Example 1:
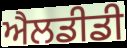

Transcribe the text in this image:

ਐਲਡੀਡੀ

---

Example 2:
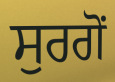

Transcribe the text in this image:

ਸੁਰਗੋਂ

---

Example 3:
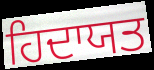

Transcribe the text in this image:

ਹਿਦਾਯਤ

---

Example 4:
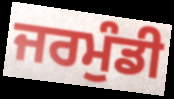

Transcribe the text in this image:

ਜਰਮੁੰਡੀ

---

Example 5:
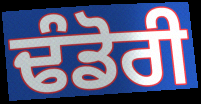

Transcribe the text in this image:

ਢੰਡੋਰੀ